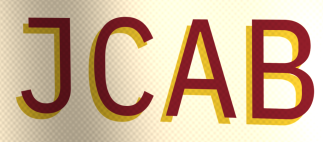
JCAB